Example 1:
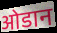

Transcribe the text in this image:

ओडान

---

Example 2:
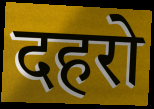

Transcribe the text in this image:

दहरो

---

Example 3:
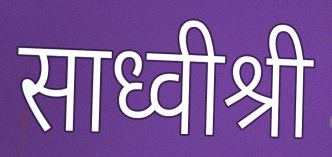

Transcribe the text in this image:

साध्वीश्री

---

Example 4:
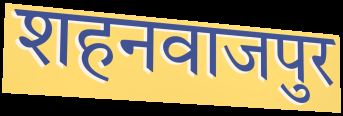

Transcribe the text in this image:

शहनवाजपुर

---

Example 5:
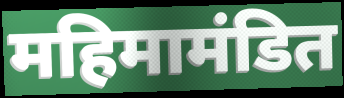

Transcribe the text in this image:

महिमामंडित